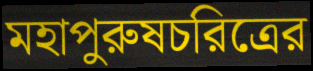
মহাপুরুষচরিত্রের